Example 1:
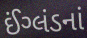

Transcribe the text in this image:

ઈંગ્લંડનાં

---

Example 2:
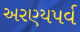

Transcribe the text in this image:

અરણ્યપર્વ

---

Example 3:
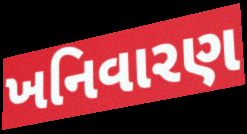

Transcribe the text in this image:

ખનિવારણ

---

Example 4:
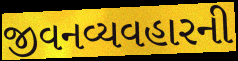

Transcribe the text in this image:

જીવનવ્યવહારની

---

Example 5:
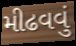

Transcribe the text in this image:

મીઢવવું